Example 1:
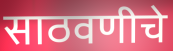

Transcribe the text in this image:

साठवणीचे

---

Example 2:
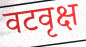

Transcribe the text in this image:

वटवृक्ष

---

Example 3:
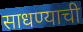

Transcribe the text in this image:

साधण्याची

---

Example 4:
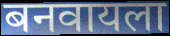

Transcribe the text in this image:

बनवायला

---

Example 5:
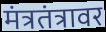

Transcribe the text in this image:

मंत्रतंत्रावर